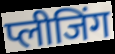
प्लीजिंग